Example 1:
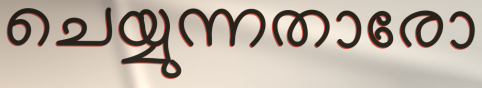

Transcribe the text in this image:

ചെയ്യുന്നതാരോ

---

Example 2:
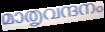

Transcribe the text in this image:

മാതൃവന്ദനം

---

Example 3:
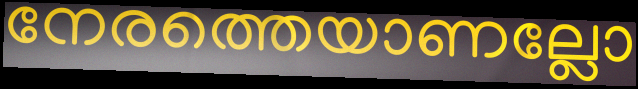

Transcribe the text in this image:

നേരത്തെയാണല്ലോ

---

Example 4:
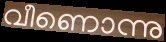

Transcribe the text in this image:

വീണൊന്നു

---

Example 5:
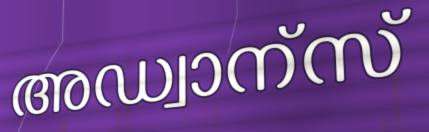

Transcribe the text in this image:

അഡ്വാന്സ്